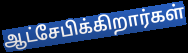
ஆட்சேபிக்கிறார்கள்